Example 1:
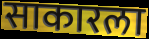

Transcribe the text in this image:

साकारला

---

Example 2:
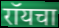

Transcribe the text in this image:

रॉयचा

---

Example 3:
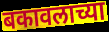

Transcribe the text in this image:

बकावलाच्या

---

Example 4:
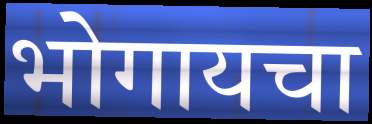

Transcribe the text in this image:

भोगायचा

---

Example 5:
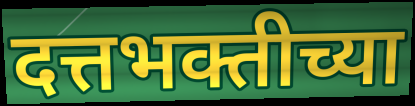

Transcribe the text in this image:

दत्तभक्तीच्या